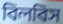
বিলবিস